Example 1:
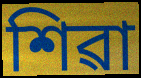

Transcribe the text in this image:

শিৱা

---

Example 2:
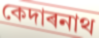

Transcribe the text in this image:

কেদাৰনাথ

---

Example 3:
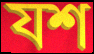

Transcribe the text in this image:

যশ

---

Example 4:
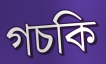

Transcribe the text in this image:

গচকি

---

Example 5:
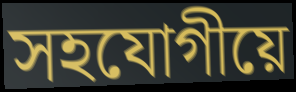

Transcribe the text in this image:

সহযোগীয়ে